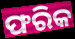
ଫରିକ